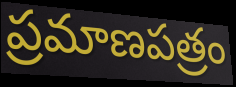
ప్రమాణపత్రం